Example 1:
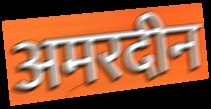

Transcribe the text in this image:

अमरदीन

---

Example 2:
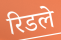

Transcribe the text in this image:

रिडले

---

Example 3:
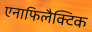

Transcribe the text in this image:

एनाफिलैक्टिक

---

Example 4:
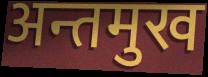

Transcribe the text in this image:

अन्तमुख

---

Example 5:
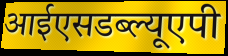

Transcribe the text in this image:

आईएसडब्ल्यूएपी